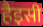
हैइसी